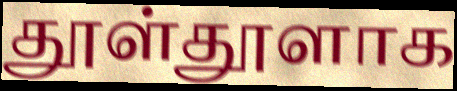
தூள்தூளாக